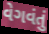
વેગવંતું